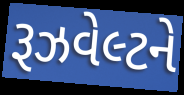
રૂઝવેલ્ટને